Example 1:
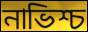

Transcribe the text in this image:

নাভিশ্চ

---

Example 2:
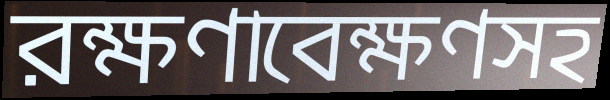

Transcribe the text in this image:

রক্ষণাবেক্ষণসহ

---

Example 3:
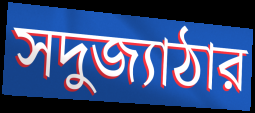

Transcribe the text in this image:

সদুজ্যাঠার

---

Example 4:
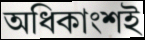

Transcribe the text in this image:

অধিকাংশই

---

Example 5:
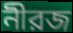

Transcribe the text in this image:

নীরজ